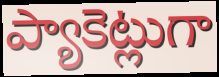
ప్యాకెట్లుగా